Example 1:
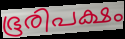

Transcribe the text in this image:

ഭൂരിപക്ഷം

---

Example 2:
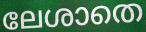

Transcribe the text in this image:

ലേശാതെ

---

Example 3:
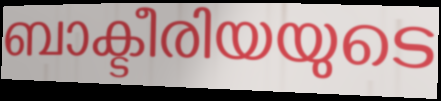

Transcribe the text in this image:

ബാക്ടീരിയയുടെ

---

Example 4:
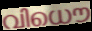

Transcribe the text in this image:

വിധൌ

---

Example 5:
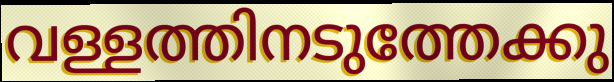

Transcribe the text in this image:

വള്ളത്തിനടുത്തേക്കു